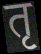
तृ